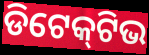
ଡିଟେକ୍‍ଟିଭ